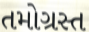
તમોગ્રસ્ત